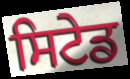
ਸਿਟੇਡ